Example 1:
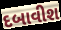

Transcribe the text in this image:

દબાવીશ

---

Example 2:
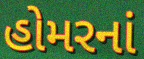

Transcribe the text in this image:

હોમરનાં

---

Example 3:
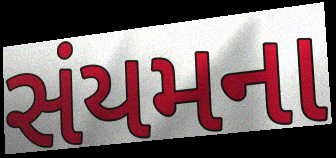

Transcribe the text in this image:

સંયમના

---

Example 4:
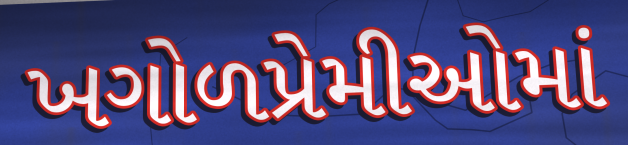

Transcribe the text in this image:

ખગોળપ્રેમીઓમાં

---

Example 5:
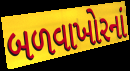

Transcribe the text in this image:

બળવાખોરનાં